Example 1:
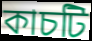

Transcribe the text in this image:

কাচটি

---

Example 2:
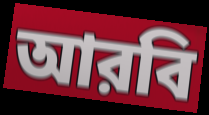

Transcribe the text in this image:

আরবি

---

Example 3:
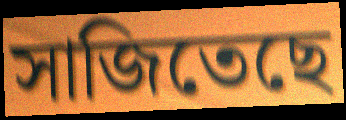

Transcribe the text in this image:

সাজিতেছে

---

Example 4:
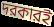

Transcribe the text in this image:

দরকারই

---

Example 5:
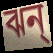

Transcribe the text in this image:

ঝন্